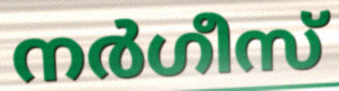
നർഗീസ്